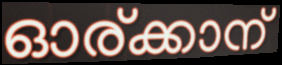
ഓര്ക്കാന്